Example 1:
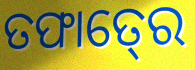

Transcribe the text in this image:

ତଫାତ୍‍ରେ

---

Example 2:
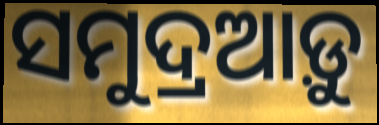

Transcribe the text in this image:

ସମୁଦ୍ରଆଡ଼ୁ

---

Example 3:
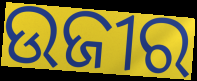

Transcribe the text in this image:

ଉଜୀର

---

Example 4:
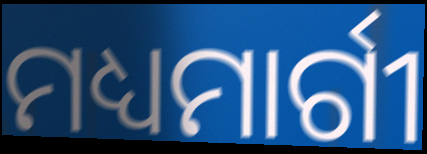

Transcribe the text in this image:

ମଧ୍ୟମାର୍ଗୀ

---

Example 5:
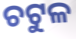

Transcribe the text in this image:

ଚଟୁଳ